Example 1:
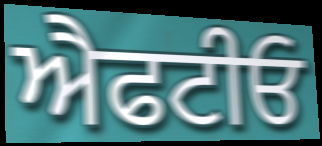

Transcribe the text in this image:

ਐਫਟੀਓ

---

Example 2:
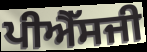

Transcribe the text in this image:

ਪੀਐੱਸਜੀ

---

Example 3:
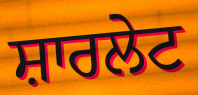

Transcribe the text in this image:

ਸ਼ਾਰਲੇਟ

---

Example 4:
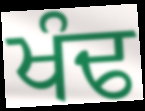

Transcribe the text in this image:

ਖੰਢ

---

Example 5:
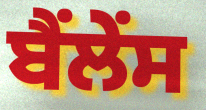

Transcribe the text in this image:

ਬੈਂਲੇਂਸ